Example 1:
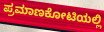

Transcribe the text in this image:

ಪ್ರಮಾಣಕೋಟಿಯಲ್ಲಿ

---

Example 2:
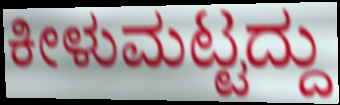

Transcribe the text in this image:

ಕೀಳುಮಟ್ಟದ್ದು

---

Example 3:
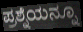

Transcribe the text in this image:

ಪ್ರಶ್ನೆಯನ್ನೂ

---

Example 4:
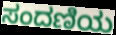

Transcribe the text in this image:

ಸಂದಣಿಯ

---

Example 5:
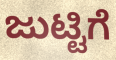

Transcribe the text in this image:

ಜುಟ್ಟಿಗೆ